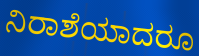
ನಿರಾಶೆಯಾದರೂ